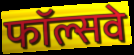
फॉल्सवे